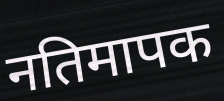
नतिमापक